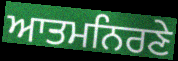
ਆਤਮਨਿਰਣੇ